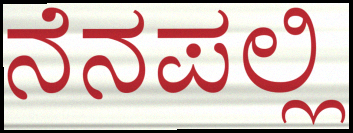
ನೆನಪಲ್ಲಿ